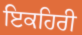
ਇਕਹਿਰੀ